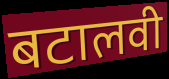
बटालवी